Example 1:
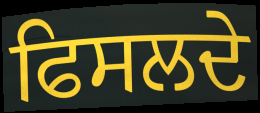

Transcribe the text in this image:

ਫਿਸਲਦੇ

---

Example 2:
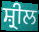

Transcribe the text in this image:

ਸ਼੍ਰੀਲ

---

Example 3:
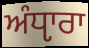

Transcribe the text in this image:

ਅੰਧੵਾਰਾ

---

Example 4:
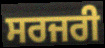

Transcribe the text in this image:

ਸਰਜਰੀ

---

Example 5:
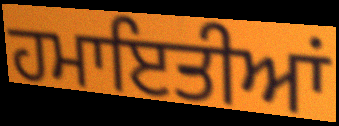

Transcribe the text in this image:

ਹਮਾਇਤੀਆਂ